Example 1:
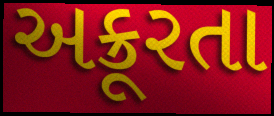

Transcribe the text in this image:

અક્રૂરતા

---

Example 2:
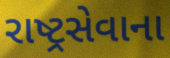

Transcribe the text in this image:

રાષ્ટ્રસેવાના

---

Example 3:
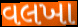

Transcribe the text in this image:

વલખા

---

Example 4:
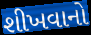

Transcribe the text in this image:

શીખવાનો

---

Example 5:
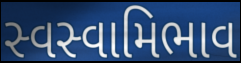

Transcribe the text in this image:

સ્વસ્વામિભાવ